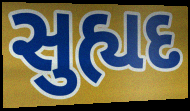
સુહ્યદ